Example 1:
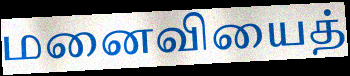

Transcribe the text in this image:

மனைவியைத்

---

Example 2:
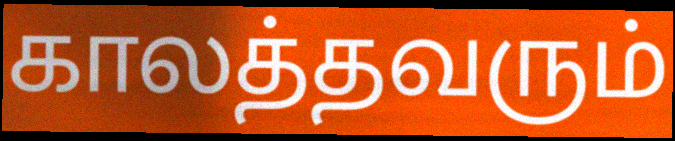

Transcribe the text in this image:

காலத்தவரும்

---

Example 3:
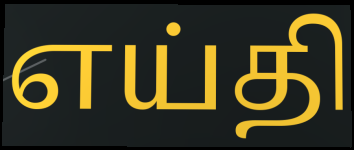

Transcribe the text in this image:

எய்தி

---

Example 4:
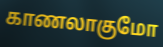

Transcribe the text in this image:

காணலாகுமோ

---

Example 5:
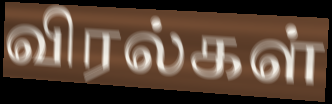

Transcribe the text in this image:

விரல்கள்